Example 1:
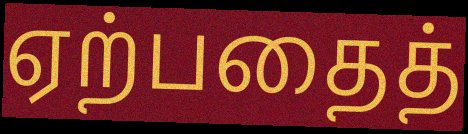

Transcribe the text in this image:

ஏற்பதைத்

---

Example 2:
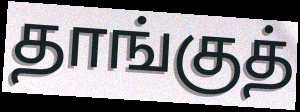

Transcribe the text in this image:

தாங்குத்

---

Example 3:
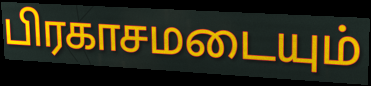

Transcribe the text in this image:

பிரகாசமடையும்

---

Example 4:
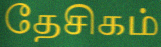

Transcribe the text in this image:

தேசிகம்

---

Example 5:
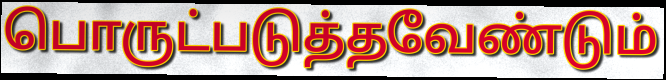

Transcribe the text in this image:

பொருட்படுத்தவேண்டும்